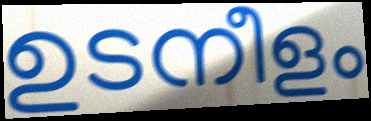
ഉടനീളം